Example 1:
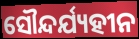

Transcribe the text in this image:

ସୌନ୍ଦର୍ଯ୍ୟହୀନ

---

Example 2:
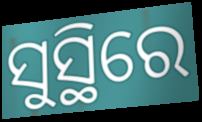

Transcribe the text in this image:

ସୁସ୍ଥିରେ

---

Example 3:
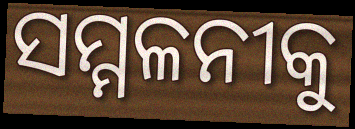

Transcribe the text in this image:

ସମ୍ମଳନୀକୁ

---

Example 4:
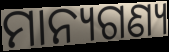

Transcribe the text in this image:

ମାନ୍ୟଗଣ୍ୟ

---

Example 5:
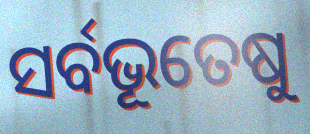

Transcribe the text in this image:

ସର୍ବଭୂତେଷୁ